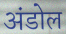
अंडोल